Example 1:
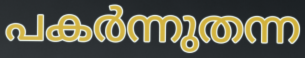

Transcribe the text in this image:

പകർന്നുതന്ന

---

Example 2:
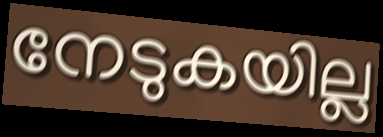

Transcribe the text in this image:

നേടുകയില്ല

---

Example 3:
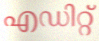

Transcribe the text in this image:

എഡിറ്റ്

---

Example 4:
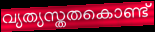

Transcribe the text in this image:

വ്യത്യസ്തതകൊണ്ട്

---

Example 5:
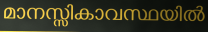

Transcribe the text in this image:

മാനസ്സികാവസ്ഥയിൽ